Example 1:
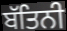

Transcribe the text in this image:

ਬੱਤਿਨੀ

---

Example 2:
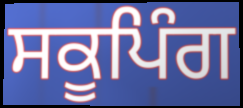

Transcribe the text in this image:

ਸਕੂਪਿੰਗ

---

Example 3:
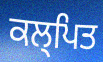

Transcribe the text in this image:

ਕਲ੍ਪਿਤ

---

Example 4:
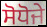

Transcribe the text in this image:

ਸੋਧੋਜੇ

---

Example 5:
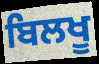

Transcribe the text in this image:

ਬਿਲਖੂ